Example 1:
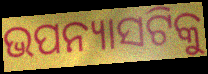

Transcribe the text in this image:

ଭପନ୍ୟାସଟିକୁ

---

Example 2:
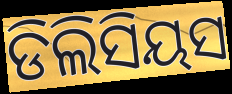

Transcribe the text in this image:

ଡିଲିସିୟସ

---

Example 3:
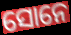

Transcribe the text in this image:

ସୋନେ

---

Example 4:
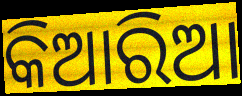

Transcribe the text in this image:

କିଆରିଆ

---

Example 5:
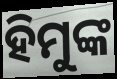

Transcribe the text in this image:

ହିମୁଙ୍କ